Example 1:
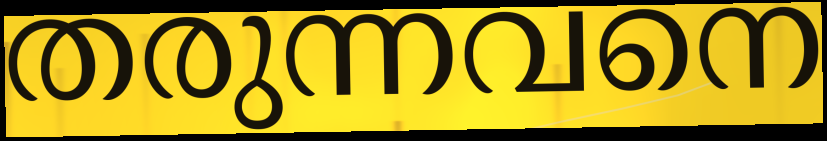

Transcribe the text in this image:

തരുന്നവനെ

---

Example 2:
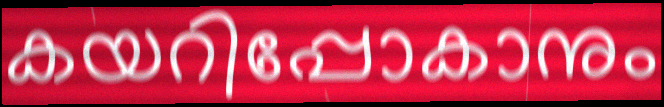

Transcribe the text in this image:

കയറിപ്പോകാനും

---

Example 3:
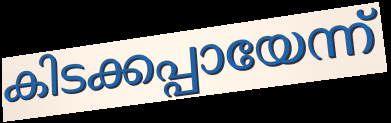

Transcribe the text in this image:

കിടക്കപ്പായേന്ന്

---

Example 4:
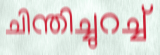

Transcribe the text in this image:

ചിന്തിച്ചുറച്ച്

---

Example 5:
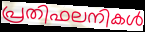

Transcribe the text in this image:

പ്രതിഫലനികൾ